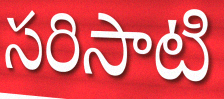
సరిసాటి